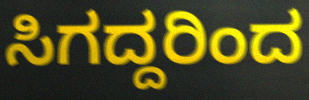
ಸಿಗದ್ದರಿಂದ